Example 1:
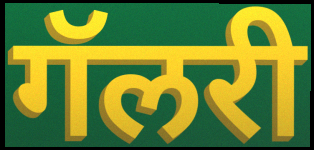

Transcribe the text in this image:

गॅलरी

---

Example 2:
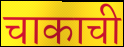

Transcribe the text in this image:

चाकाची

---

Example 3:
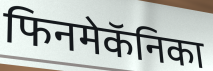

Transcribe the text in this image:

फिनमेकॅनिका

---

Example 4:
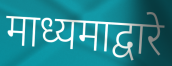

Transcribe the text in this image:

माध्यमाद्वारे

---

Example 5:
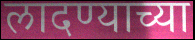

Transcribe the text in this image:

लादण्याच्या